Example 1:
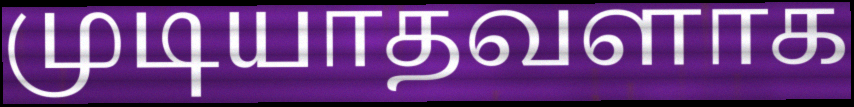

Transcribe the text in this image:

முடியாதவளாக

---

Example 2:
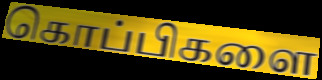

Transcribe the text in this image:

கொப்பிகளை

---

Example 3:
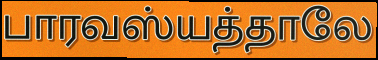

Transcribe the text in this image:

பாரவஸ்யத்தாலே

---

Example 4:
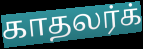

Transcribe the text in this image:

காதலர்க்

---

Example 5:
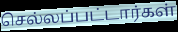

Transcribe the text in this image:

செல்லப்பட்டார்கள்